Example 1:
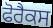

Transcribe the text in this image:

ਫੋਰੈਕਸ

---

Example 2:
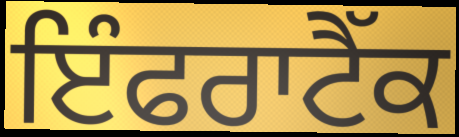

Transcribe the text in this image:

ਇੰਫਰਾਟੈੱਕ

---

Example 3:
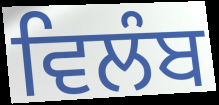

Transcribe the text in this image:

ਵਿਲੰਬ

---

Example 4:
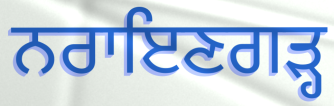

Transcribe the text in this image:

ਨਰਾਇਣਗੜ੍ਹ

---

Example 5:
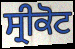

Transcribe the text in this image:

ਸ੍ਰੀਕੋਟ